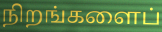
நிறங்களைப்